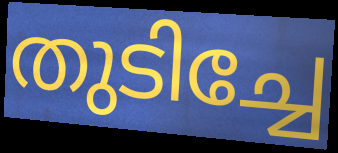
തുടിച്ചേ